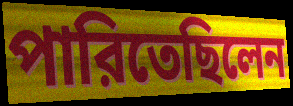
পারিতেছিলেন